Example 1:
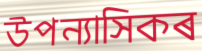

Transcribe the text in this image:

উপন্যাসিকৰ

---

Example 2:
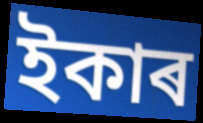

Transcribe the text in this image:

ইকাৰ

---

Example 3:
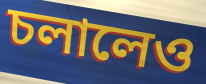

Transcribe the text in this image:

চলালেও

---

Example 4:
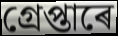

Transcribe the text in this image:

গ্ৰেপ্তাৰে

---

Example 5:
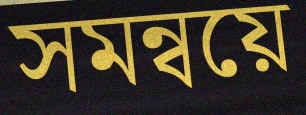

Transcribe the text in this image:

সমন্বয়ে